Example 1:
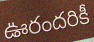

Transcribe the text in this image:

ఊరందరికీ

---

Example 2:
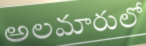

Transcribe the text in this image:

అలమారులో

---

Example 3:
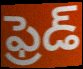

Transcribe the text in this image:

ఫ్రెడ్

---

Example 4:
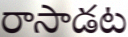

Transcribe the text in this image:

రాసాడట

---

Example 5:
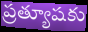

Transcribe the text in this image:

ప్రత్యూషకు